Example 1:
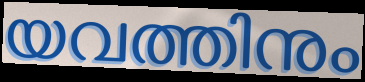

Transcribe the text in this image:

യവത്തിനും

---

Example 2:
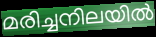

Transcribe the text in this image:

മരിച്ചനിലയിൽ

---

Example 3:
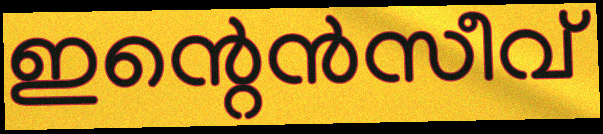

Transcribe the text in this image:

ഇന്റെൻസീവ്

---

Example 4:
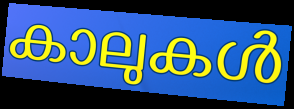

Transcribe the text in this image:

കാലുകൾ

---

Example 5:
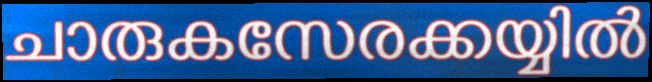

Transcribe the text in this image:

ചാരുകസേരക്കയ്യിൽ